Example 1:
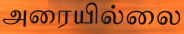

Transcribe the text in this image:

அரையில்லை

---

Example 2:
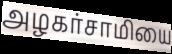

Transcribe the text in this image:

அழகர்சாமியை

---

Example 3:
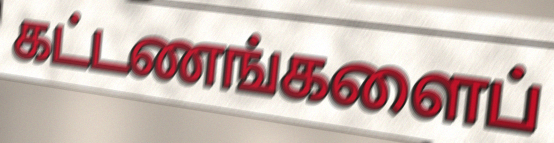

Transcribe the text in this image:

கட்டணங்களைப்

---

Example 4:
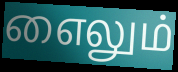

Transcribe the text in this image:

எைலும்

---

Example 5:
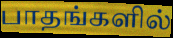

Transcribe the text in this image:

பாதங்களில்